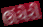
ઊંચેરી